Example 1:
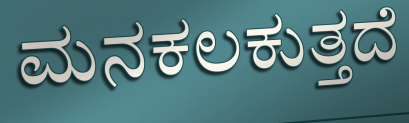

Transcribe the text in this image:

ಮನಕಲಕುತ್ತದೆ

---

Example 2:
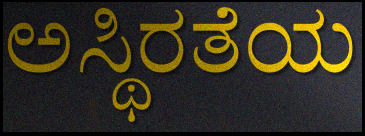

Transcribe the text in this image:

ಅಸ್ಥಿರತೆಯ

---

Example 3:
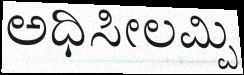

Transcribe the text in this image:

ಅಧಿಸೀಲಮ್ಪಿ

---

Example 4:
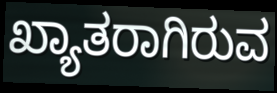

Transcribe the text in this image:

ಖ್ಯಾತರಾಗಿರುವ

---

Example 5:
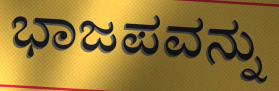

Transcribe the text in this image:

ಭಾಜಪವನ್ನು